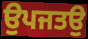
ਉਪਜਤਉ